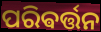
ପରିଵର୍ତ୍ତନ